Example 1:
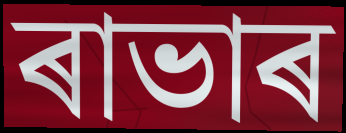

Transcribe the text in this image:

ৰাভাৰ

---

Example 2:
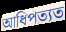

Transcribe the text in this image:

আধিপত্যত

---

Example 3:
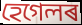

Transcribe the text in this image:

হেগেলৰ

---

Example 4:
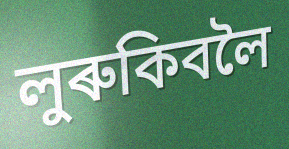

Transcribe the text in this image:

লুৰুকিবলৈ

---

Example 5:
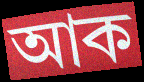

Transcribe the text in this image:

আক